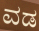
ವಡ